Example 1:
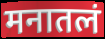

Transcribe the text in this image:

मनातलं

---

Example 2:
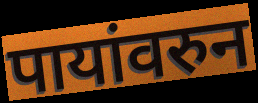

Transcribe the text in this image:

पायांवरुन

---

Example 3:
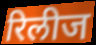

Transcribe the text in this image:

रिलीज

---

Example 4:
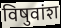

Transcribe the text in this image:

विषुवांश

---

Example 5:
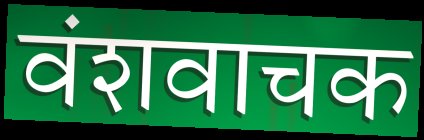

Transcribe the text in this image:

वंशवाचक